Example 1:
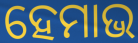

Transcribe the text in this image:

ହେମାଭ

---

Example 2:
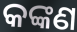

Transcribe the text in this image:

କଙ୍କଣ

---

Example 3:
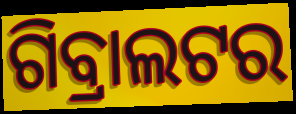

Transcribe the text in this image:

ଗିବ୍ରାଲଟର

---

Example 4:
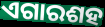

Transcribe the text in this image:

ଏଗାରଶହ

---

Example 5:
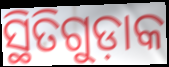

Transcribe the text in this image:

ସ୍ଥିତିଗୁଡ଼ାକ